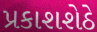
પ્રકાશશેઠે